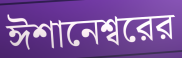
ঈশানেশ্বরের